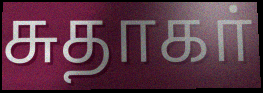
சுதாகர்